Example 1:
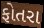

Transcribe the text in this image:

ફોતરા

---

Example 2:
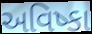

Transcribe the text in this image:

અવિષ્કા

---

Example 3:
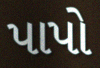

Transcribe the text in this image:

પાપો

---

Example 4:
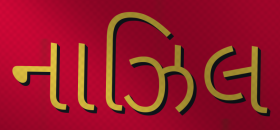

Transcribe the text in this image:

નાઝિલ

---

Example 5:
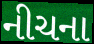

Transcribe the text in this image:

નીચના